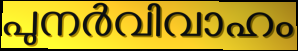
പുനർവിവാഹം